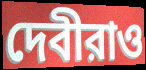
দেবীরাও